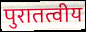
पुरातत्वीय